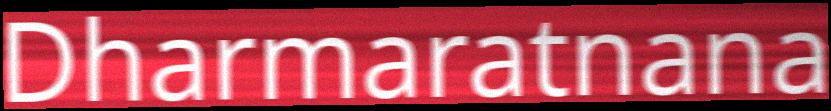
Dharmaratnana